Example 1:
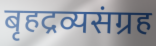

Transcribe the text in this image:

बृहद्रव्यसंग्रह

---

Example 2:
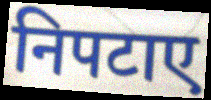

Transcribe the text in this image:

निपटाए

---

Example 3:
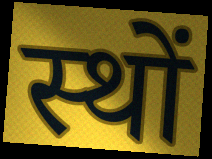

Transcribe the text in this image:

स्थों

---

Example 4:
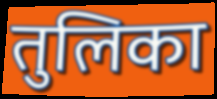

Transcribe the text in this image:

तुलिका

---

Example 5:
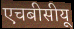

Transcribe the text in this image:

एचबीसीयू